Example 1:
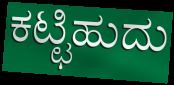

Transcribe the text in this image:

ಕಟ್ಟಿಹುದು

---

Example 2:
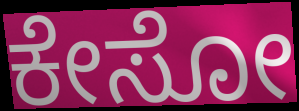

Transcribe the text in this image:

ಕೇಸೋ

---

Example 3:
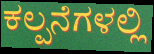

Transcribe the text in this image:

ಕಲ್ಪನೆಗಳಲ್ಲಿ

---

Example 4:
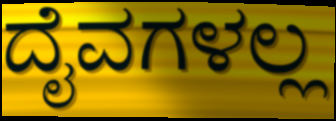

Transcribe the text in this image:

ದೈವಗಳಲ್ಲ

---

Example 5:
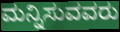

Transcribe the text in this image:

ಮನ್ನಿಸುವವರು